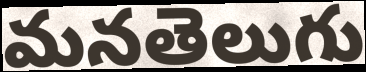
మనతెలుగు